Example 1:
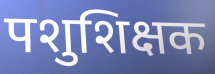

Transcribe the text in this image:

पशुशिक्षक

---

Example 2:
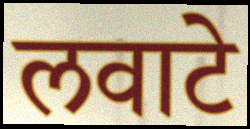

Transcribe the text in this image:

लवाटे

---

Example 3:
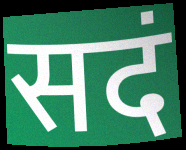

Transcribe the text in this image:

सदं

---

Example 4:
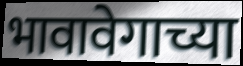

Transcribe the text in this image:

भावावेगाच्या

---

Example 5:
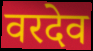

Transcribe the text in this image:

वरदेव